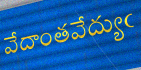
వేదాంతవేద్యుఁ